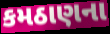
કમઠાણના